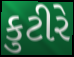
કુટીરે